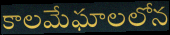
కాలమేఘాలలోన